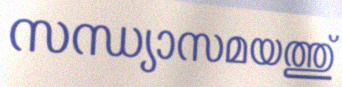
സന്ധ്യാസമയത്തു്